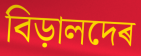
বিড়ালদেৰ